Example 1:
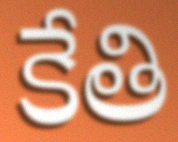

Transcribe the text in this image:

కేతి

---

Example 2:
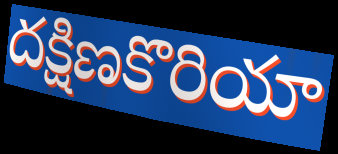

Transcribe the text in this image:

దక్షిణకొరియా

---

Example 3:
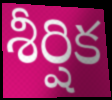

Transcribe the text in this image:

శీర్షిక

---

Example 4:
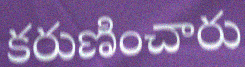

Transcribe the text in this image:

కరుణించారు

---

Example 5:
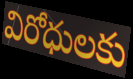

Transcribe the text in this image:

విరోధులకు